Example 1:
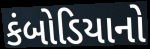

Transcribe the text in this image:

કંબોડિયાનો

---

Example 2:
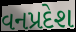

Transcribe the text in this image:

વનપ્રદેશ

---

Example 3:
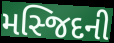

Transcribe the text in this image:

મસ્જિદની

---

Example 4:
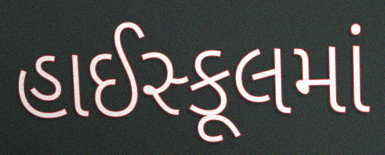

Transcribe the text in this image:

હાઈસ્કૂલમાં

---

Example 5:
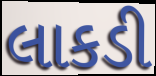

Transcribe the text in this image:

લાકડી